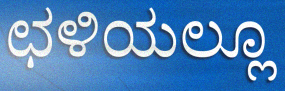
ಛಳಿಯಲ್ಲೂ